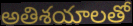
అతిశయాలతో